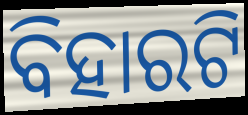
ବିହାରଟି